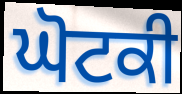
ਘੋਟਕੀ